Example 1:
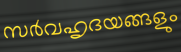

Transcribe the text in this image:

സർവഹൃദയങ്ങളും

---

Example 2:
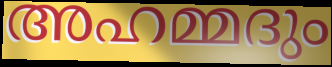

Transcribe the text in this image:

അഹമ്മദും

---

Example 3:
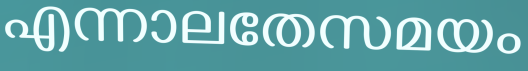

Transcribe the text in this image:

എന്നാലതേസമയം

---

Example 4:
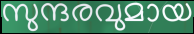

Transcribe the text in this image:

സുന്ദരവുമായ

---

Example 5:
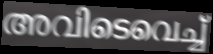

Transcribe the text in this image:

അവിടെവെച്ച്